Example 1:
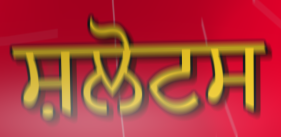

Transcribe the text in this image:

ਸ਼ਲੋਟਸ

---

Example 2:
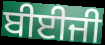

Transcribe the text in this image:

ਬੀਈਜੀ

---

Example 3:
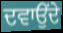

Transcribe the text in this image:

ਦਵਾਉਂਦੇ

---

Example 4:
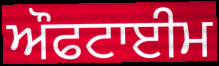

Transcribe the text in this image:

ਔਫਟਾਈਮ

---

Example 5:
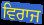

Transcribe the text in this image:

ਵਿਰਾਜ